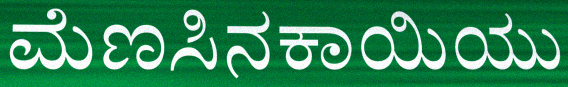
ಮೆಣಸಿನಕಾಯಿಯು